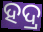
ହଦ୍ର